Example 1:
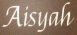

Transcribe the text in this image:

Aisyah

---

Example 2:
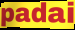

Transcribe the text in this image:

padai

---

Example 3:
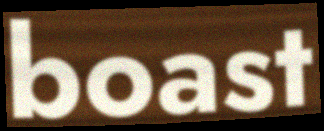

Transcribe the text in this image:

boast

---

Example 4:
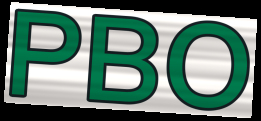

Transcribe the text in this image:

PBO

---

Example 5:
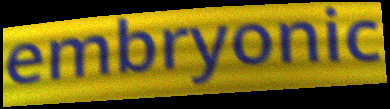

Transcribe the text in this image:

embryonic